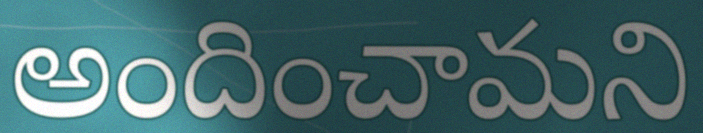
అందించామని